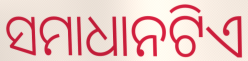
ସମାଧାନଟିଏ